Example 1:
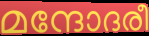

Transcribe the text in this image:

മന്ദോദരീ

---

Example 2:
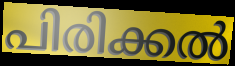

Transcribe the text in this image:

പിരിക്കൽ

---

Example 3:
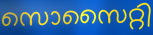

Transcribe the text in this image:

സൊസൈറ്റി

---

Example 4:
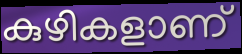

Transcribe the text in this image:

കുഴികളാണ്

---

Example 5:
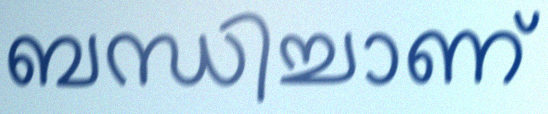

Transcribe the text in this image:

ബന്ധിച്ചാണ്